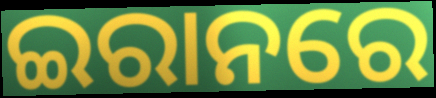
ଇରାନରେ